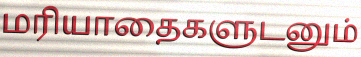
மரியாதைகளுடனும்